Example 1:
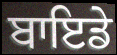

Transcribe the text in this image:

ਬਾਇਡੇ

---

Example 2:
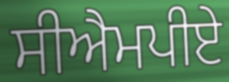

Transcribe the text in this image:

ਸੀਐਮਪੀਏ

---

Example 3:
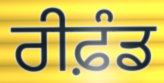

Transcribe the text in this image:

ਰੀਫ਼ੰਡ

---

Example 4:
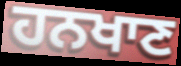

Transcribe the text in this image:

ਹਨਖਾਣ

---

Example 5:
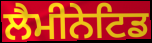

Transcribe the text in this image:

ਲੈਮੀਨੇਟਿਡ